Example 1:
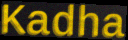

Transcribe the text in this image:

Kadha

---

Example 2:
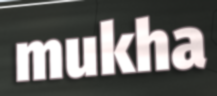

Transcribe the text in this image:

mukha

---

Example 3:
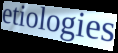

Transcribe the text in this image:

etiologies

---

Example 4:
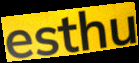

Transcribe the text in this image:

esthu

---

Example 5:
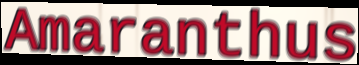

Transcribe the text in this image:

Amaranthus